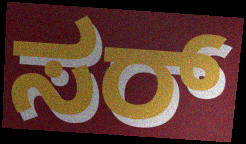
ಸರ್